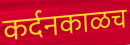
कर्दनकाळच